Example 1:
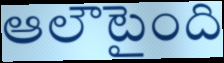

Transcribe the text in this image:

ఆలౌటైంది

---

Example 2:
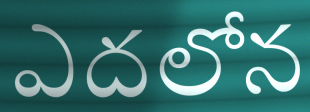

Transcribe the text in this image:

ఎదలోన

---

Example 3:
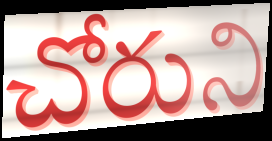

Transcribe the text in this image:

చోరుని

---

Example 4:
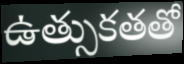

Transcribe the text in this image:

ఉత్సుకతతో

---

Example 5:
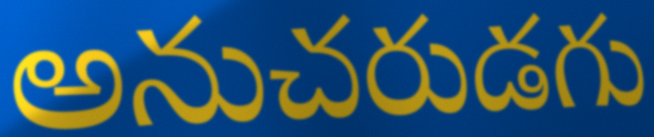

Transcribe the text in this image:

అనుచరుడగు